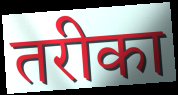
तरीका